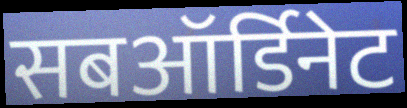
सबऑर्डिनेट